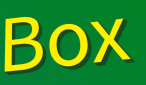
Box